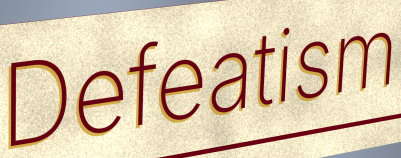
Defeatism